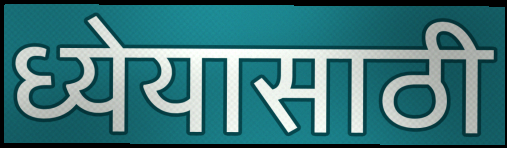
ध्येयासाठी